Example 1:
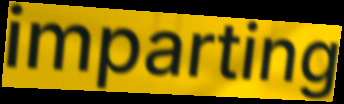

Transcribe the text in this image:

imparting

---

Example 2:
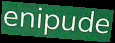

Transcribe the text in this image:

enipude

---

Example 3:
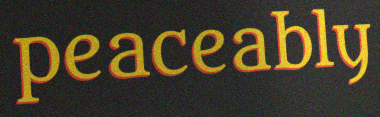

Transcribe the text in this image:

peaceably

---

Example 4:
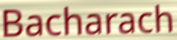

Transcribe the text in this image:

Bacharach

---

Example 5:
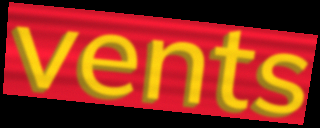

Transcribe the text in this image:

vents